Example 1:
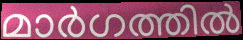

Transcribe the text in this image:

മാർഗത്തിൽ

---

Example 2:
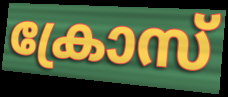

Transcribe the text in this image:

ക്രോസ്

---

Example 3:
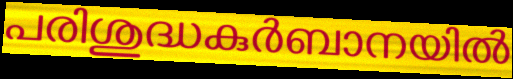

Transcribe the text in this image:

പരിശുദ്ധകുർബാനയിൽ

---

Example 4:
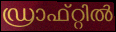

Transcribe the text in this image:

ഡ്രാഫ്റ്റിൽ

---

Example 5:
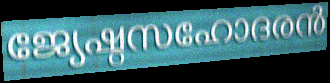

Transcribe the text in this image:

ജ്യേഷ്ഠസഹോദരൻ